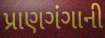
પ્રાણગંગાની